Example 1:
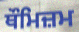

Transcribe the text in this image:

ਥੌਮਿਜ਼ਮ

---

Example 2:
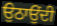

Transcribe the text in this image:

ਉਠਾਉਂਦੀ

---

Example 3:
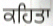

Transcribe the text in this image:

ਕਹਿਤਾ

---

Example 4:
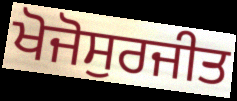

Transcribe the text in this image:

ਖੋਜੋਸੁਰਜੀਤ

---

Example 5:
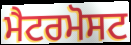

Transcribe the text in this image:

ਮੈਟਰਮੋਸਟ